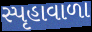
સ્પૃહાવાળા